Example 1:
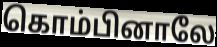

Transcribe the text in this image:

கொம்பினாலே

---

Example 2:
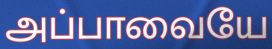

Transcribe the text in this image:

அப்பாவையே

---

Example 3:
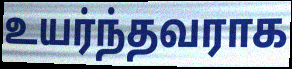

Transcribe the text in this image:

உயர்ந்தவராக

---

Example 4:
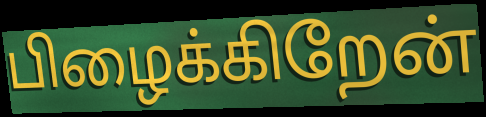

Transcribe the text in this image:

பிழைக்கிறேன்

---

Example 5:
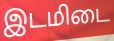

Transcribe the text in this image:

இடமிடை